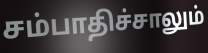
சம்பாதிச்சாலும்